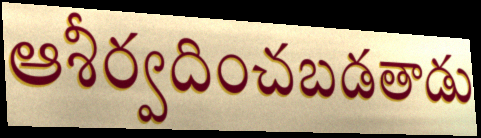
ఆశీర్వదించబడతాడు